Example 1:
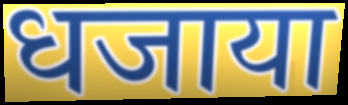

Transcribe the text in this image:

धजाया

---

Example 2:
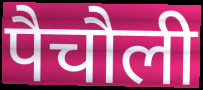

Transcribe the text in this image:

पैचौली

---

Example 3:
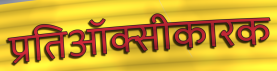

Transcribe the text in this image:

प्रतिऑक्सीकारक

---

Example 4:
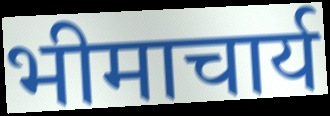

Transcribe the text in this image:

भीमाचार्य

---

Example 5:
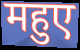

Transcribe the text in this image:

महुए